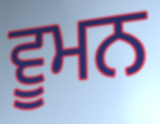
ਵੂਮਨ